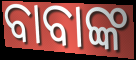
ବାବାଙ୍କ